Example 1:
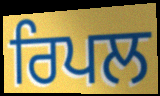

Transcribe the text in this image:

ਰਿਪਲ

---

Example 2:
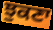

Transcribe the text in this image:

ਝੁਕਣਾ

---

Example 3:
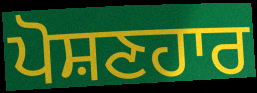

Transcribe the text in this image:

ਪੋਸ਼ਣਹਾਰ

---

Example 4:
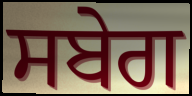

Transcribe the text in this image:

ਸਬੇਗ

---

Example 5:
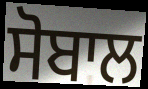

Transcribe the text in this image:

ਸੋਬਾਲ